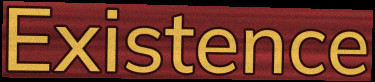
Existence